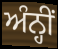
ਅੰਨ੍ਹੀਂ